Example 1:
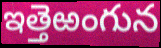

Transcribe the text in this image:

ఇత్తెఱంగున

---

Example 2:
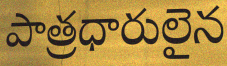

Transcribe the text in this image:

పాత్రధారులైన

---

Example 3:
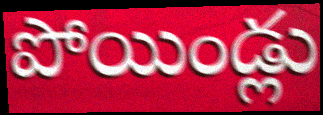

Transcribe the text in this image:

పోయిండ్లు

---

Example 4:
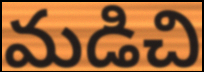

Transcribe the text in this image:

మడిచి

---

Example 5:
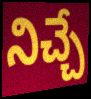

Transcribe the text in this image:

నిచ్చే